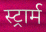
स्ट्रार्म